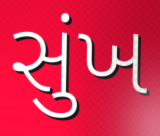
સુંખ